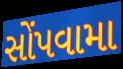
સોંપવામા